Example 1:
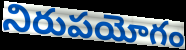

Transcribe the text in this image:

నిరుపయోగం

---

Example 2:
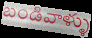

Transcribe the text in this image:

బండివాళ్ళు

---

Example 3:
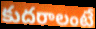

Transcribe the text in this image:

కుదరాలంటే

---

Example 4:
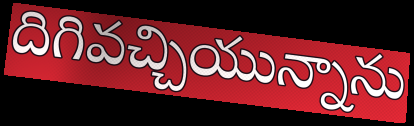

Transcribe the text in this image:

దిగివచ్చియున్నాను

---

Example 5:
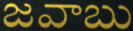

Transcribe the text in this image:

జవాబు